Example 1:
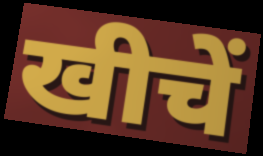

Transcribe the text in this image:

खीचें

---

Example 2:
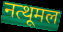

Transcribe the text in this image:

नत्थूमल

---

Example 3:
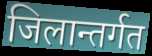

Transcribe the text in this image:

जिलान्तर्गत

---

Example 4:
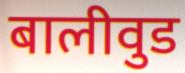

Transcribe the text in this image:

बालीवुड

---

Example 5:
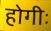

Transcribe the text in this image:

होगीः